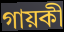
গায়কী